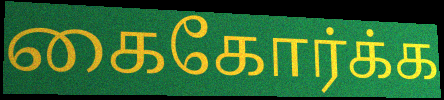
கைகோர்க்க